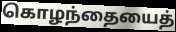
கொழந்தையைத்